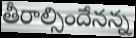
తీరాల్సిందేనన్న